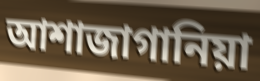
আশাজাগানিয়া